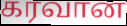
கரவான